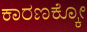
ಕಾರಣಕ್ಕೋ